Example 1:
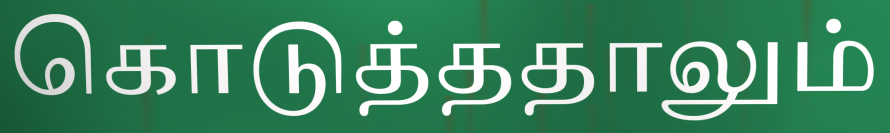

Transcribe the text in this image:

கொடுத்ததாலும்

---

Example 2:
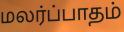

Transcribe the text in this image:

மலர்ப்பாதம்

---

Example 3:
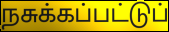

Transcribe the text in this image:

நசுக்கப்பட்டுப்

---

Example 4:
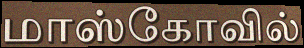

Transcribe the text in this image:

மாஸ்கோவில்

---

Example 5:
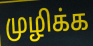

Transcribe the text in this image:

முழிக்க